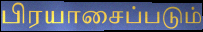
பிரயாசைப்படும்